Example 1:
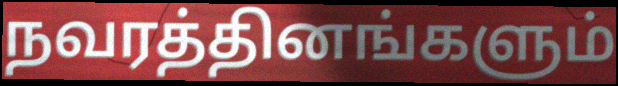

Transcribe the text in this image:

நவரத்தினங்களும்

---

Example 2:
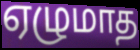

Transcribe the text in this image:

ஏழுமாத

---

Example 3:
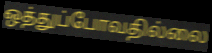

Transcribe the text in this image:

ஒத்துப்போவதில்லை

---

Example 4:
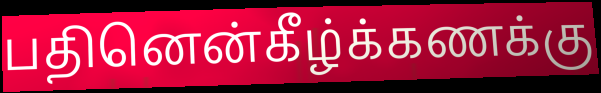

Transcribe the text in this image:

பதினென்கீழ்க்கணக்கு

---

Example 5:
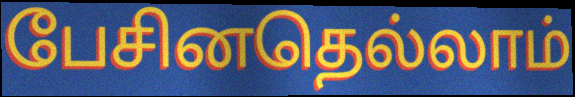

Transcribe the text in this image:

பேசினதெல்லாம்